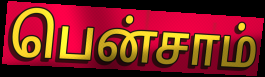
பென்சாம்